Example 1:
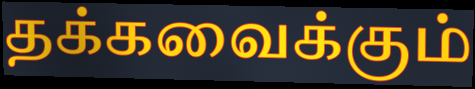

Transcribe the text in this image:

தக்கவைக்கும்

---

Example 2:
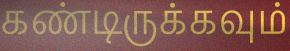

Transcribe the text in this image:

கண்டிருக்கவும்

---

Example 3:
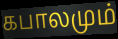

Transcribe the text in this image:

கபாலமும்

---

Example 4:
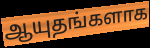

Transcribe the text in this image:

ஆயுதங்களாக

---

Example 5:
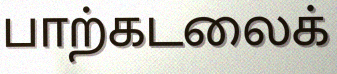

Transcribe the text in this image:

பாற்கடலைக்